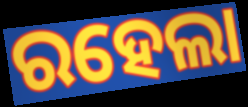
ରହେଲା